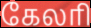
கேலரி